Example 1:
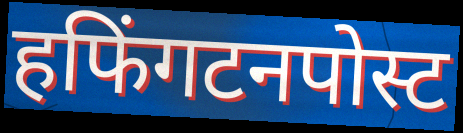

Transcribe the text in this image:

हफिंगटनपोस्ट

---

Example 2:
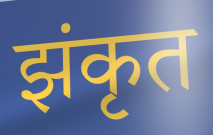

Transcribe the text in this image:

झंकृत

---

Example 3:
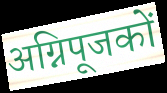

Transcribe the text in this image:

अग्निपूजकों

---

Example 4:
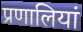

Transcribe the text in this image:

प्रणालियां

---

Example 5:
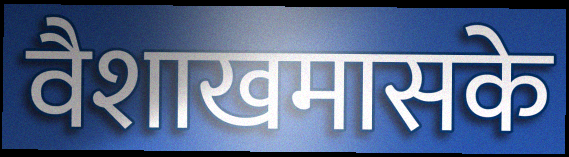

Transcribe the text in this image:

वैशाखमासके